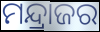
ମନ୍ଦ୍ରାଜର